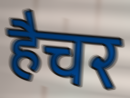
हैचर